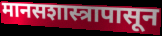
मानसशास्त्रापासून